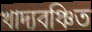
খাদ্যবঞ্চিত